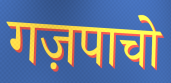
गज़पाचो